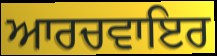
ਆਰਚਵਾਇਰ